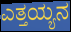
ಎತ್ತಯ್ಯನ